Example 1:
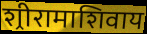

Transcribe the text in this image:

श्रीरामाशिवाय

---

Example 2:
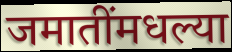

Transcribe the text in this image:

जमातींमधल्या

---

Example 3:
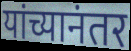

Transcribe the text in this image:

यांच्यानंतर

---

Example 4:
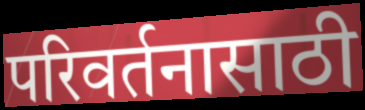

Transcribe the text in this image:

परिवर्तनासाठी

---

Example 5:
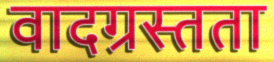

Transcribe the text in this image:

वादग्रस्तता